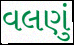
વલણું